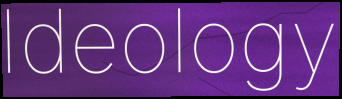
Ideology